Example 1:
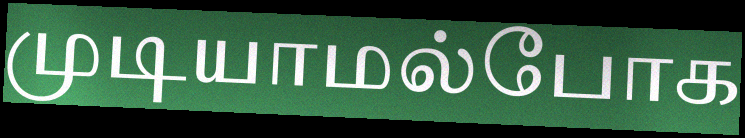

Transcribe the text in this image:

முடியாமல்போக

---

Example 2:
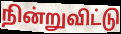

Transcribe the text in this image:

நின்றுவிட்டு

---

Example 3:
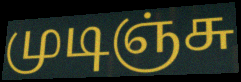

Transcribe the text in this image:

முடிஞ்சு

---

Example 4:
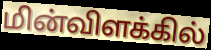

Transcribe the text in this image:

மின்விளக்கில்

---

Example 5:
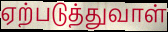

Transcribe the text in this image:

ஏற்படுத்துவாள்